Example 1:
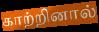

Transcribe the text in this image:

காற்றினால்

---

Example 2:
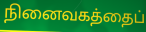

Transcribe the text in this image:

நினைவகத்தைப்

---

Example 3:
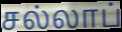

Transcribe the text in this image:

சல்லாப்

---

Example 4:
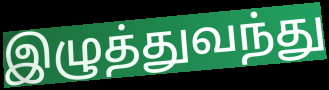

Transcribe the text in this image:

இழுத்துவந்து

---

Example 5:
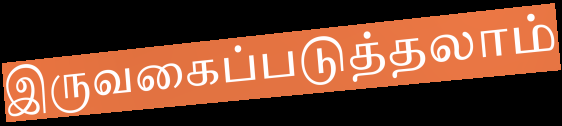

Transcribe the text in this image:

இருவகைப்படுத்தலாம்